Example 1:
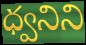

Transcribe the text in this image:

ధ్వనిని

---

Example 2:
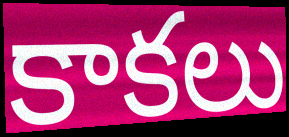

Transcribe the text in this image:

కాకలు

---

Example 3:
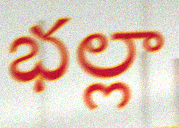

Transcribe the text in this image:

భల్లా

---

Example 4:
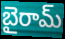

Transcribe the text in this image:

బైరామ్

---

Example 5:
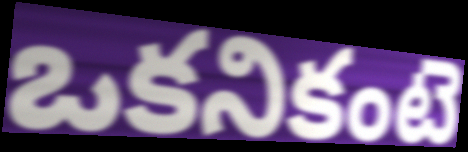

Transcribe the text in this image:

ఒకనికంటె